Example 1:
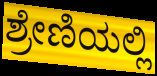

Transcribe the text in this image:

ಶ್ರೇಣಿಯಲ್ಲಿ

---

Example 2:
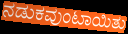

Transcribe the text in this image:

ನಡುಕವುಂಟಾಯಿತು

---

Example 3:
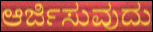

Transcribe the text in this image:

ಆರ್ಜಿಸುವುದು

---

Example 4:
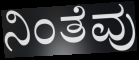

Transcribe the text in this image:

ನಿಂತೆವು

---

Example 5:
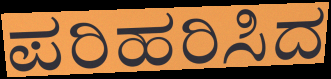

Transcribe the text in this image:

ಪರಿಹರಿಸಿದ